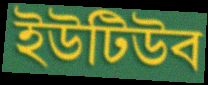
ইউটিউব